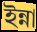
ইন্না